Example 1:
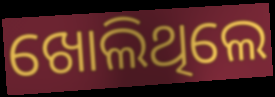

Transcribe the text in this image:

ଖୋଲିଥିଲେ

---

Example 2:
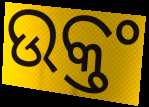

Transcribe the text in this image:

ଉକ୍ତଂ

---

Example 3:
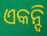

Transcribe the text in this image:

ଏକନ୍ଦି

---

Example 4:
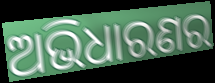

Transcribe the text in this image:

ଅଭିଧାରଣର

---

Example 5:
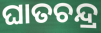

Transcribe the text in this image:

ଘାତଚନ୍ଦ୍ର